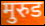
मुरुड